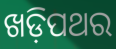
ଖଡ଼ିପଥର